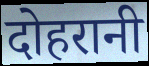
दोहरानी